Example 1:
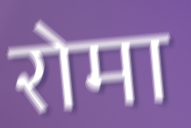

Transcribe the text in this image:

रोमा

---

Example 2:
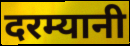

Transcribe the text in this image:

दरम्यानी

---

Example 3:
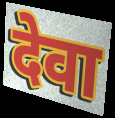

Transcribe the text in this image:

देवा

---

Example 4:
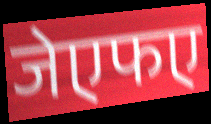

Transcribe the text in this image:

जेएफए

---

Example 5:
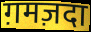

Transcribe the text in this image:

ग़मज़दा